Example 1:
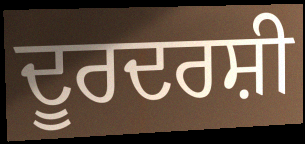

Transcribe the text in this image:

ਦੂਰਦਰਸ਼ੀ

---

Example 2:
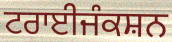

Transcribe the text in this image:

ਟਰਾਈਜੰਕਸ਼ਨ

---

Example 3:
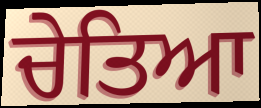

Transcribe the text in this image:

ਚੇਤਿਆ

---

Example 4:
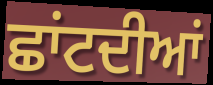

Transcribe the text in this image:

ਛਾਂਟਦੀਆਂ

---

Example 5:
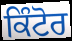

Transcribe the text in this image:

ਕਿੰਟੋਰ